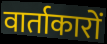
वार्ताकारों